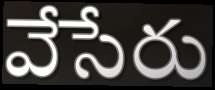
వేసేరు